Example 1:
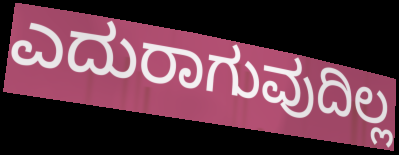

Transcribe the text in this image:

ಎದುರಾಗುವುದಿಲ್ಲ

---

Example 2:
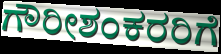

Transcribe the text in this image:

ಗೌರೀಶಂಕರರಿಗೆ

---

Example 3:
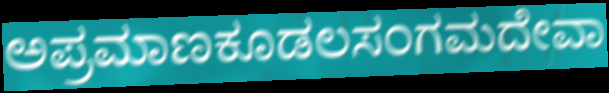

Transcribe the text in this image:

ಅಪ್ರಮಾಣಕೂಡಲಸಂಗಮದೇವಾ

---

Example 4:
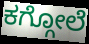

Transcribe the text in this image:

ಕಗ್ಗೋಲೆ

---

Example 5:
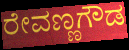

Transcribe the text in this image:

ರೇವಣ್ಣಗೌಡ